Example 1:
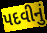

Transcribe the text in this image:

પદવીનું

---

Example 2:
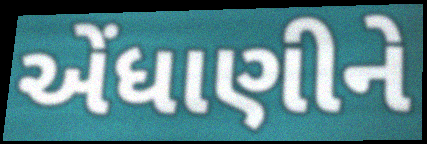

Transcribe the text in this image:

એંધાણીને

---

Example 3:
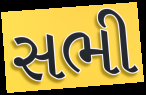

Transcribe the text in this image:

સભી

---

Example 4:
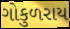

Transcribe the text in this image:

ગોકુળરાય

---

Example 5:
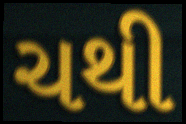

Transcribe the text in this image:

ચથી